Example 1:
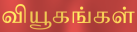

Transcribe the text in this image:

வியூகங்கள்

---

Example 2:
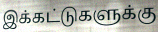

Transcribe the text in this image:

இக்கட்டுகளுக்கு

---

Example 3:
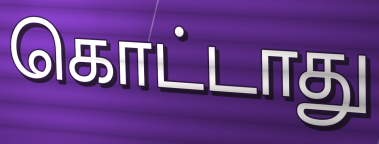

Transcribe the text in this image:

கொட்டாது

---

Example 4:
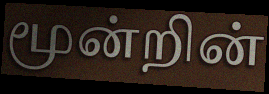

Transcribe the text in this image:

மூன்றின்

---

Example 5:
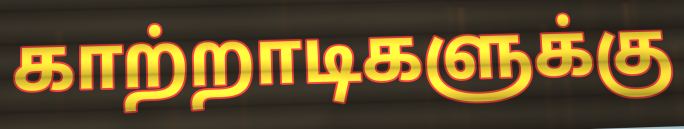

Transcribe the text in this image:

காற்றாடிகளுக்கு